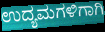
ಉದ್ಯಮಗಳಿಗಾಗಿ